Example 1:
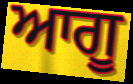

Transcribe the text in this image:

ਆਗੂ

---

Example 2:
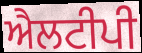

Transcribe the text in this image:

ਐਲਟੀਪੀ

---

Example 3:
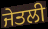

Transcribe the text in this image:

ਜੇਤਲੀ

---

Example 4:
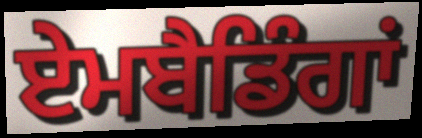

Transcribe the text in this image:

ਏਮਬੈਡਿੰਗਾਂ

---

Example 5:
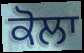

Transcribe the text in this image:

ਕੋਲਾ